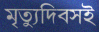
মৃত্যুদিবসই